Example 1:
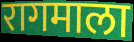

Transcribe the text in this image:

रागमाला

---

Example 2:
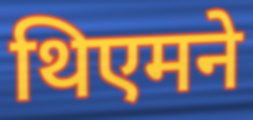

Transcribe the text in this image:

थिएमने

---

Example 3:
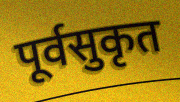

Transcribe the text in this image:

पूर्वसुकृत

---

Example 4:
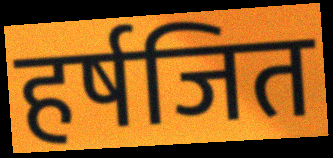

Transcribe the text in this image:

हर्षजित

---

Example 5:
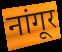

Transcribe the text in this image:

नांगूर